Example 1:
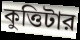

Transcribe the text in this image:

কুত্তিটার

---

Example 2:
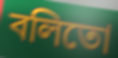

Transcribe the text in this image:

বলিতো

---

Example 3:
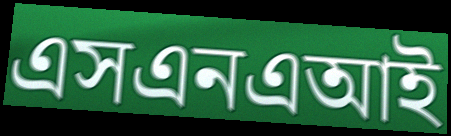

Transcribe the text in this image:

এসএনএআই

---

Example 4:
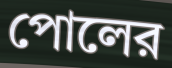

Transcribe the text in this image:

পোলের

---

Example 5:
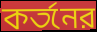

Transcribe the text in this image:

কর্তনের